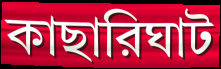
কাছারিঘাট